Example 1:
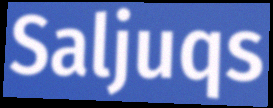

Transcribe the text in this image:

Saljuqs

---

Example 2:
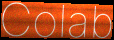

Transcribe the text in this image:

Colab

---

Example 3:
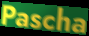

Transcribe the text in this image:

Pascha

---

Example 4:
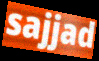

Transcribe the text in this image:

sajjad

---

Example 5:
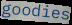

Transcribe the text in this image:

goodies